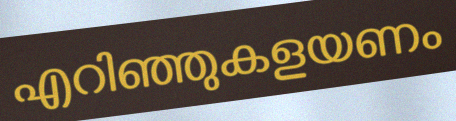
എറിഞ്ഞുകളയണം